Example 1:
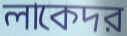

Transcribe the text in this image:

লাকেদর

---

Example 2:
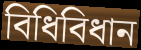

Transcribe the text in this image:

বিধিবিধান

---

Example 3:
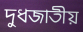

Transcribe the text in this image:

দুধজাতীয়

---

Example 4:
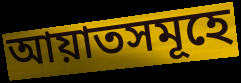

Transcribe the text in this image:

আয়াতসমূহে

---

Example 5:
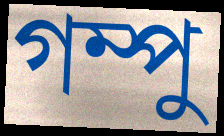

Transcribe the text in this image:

গম্পু